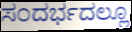
ಸಂದರ್ಭದಲ್ಲೂ